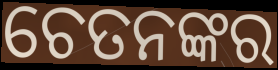
ଚେତନଙ୍କର